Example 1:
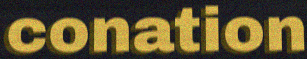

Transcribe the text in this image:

conation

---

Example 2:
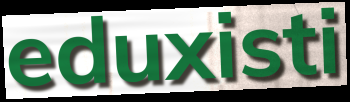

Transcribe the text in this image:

eduxisti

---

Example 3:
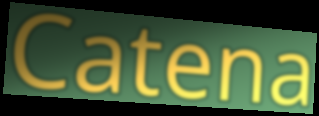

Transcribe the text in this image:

Catena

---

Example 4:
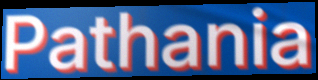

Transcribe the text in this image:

Pathania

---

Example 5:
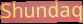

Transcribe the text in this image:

Shundaq